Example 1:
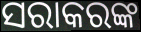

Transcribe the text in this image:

ସରାକରଙ୍କ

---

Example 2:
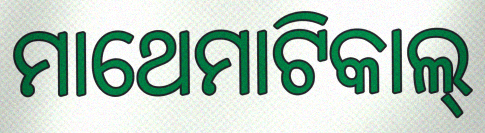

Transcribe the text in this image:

ମାଥେମାଟିକାଲ୍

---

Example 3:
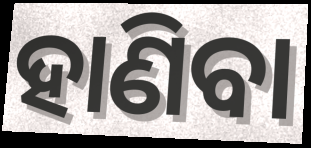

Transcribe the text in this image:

ହାଣିବା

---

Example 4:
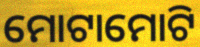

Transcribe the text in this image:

ମୋଟାମୋଟି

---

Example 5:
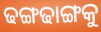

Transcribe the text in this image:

ଢଙ୍ଗଢାଙ୍ଗକୁ